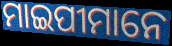
ମାଇପୀମାନେ